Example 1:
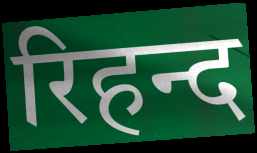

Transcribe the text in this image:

रिहन्द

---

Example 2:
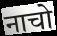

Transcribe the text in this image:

नाचो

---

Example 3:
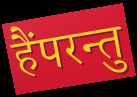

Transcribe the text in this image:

हैंपरन्तु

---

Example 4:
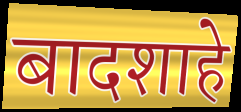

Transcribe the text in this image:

बादशाहे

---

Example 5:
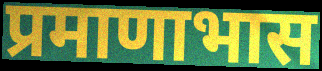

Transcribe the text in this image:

प्रमाणाभास